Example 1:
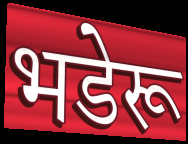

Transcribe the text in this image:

भडेरू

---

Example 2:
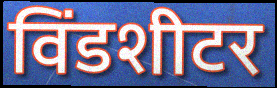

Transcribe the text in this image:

विंडशीटर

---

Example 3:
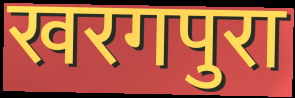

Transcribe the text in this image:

खरगपुरा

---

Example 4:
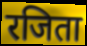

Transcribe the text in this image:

रजिता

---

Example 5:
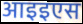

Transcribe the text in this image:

आइइएस